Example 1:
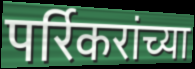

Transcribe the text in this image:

पर्रिकरांच्या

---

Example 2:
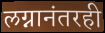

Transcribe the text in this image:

लग्नानंतरही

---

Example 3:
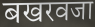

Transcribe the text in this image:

बखरवजा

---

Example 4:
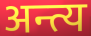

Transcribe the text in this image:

अन्त्य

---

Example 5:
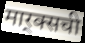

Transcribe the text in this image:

मार्क्सची